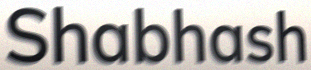
Shabhash